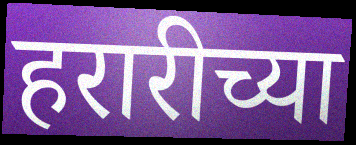
हरारीच्या